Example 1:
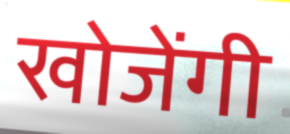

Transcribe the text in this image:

खोजेंगी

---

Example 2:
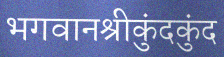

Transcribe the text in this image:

भगवानश्रीकुंदकुंद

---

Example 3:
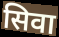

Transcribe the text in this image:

सिवा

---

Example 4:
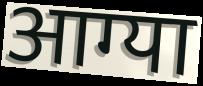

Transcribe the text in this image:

आग्या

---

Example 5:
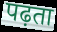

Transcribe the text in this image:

पढ़ता